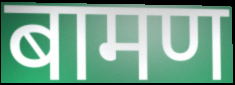
बामण